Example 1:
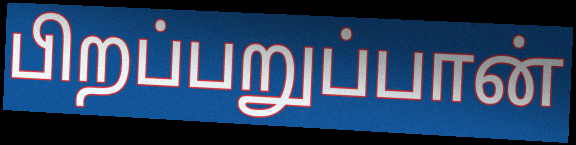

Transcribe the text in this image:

பிறப்பறுப்பான்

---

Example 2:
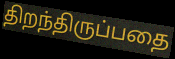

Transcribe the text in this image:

திறந்திருப்பதை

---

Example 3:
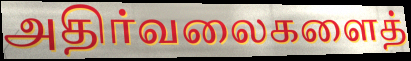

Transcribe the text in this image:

அதிர்வலைகளைத்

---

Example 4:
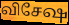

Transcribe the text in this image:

விசேஷ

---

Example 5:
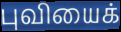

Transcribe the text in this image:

புவியைக்